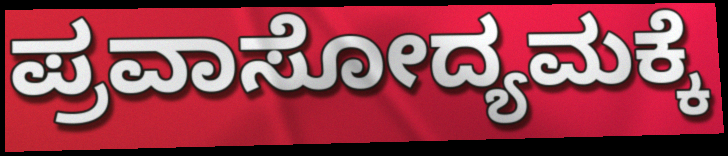
ಪ್ರವಾಸೋದ್ಯಮಕ್ಕೆ